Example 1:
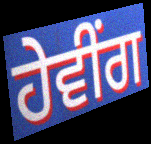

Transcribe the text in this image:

ਹੇਵੀੰਗ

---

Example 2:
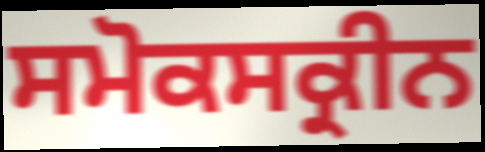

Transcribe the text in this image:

ਸਮੋਕਸਕ੍ਰੀਨ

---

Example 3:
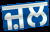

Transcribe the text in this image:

ਜ਼ਲ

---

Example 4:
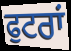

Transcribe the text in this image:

ਫੁਟਰਾਂ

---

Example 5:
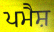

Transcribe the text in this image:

ਪਮੈਸ਼